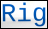
Rig